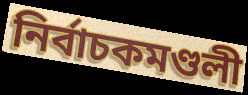
নিৰ্বাচকমণ্ডলী